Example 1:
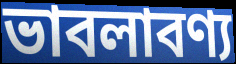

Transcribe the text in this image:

ভাবলাবণ্য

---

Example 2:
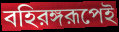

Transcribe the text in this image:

বহিরঙ্গরূপেই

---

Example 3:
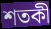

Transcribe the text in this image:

শতকী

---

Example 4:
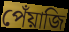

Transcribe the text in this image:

পেঁয়াজি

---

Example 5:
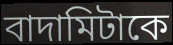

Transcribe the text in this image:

বাদামিটাকে